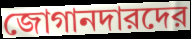
জোগানদারদের